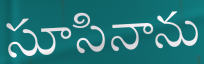
సూసినాను